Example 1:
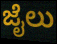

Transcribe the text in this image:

ಜೈಲು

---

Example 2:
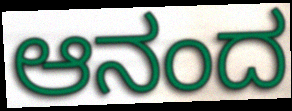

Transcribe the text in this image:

ಆನಂದ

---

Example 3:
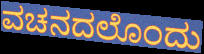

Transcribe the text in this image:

ವಚನದಲೊಂದು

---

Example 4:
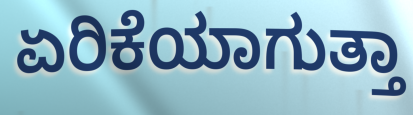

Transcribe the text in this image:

ಏರಿಕೆಯಾಗುತ್ತಾ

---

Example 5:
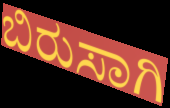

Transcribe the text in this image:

ಬಿರುಸಾಗಿ